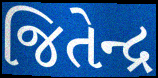
જિતેન્દ્ર